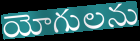
యోగులను